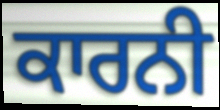
ਕਾਰਨੀ